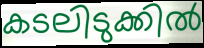
കടലിടുക്കിൽ